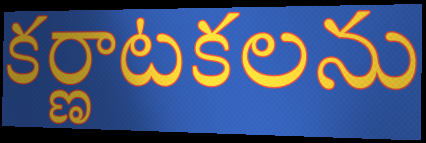
కర్ణాటకలను